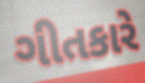
ગીતકારે